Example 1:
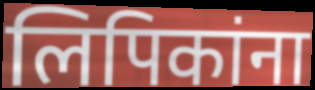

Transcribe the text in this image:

लिपिकांना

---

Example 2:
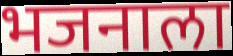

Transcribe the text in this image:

भजनाला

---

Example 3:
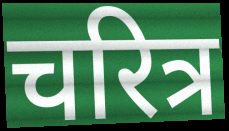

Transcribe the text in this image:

चरित्र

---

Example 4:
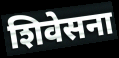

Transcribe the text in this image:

शिवेसना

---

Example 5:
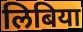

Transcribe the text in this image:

लिबिया